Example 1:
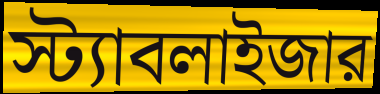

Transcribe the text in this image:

স্ট্যাবলাইজার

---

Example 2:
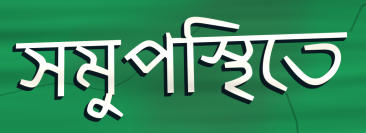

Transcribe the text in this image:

সমুপস্থিতে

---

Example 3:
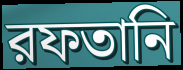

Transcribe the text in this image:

রফতানি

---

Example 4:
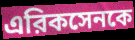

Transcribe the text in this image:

এরিকসেনকে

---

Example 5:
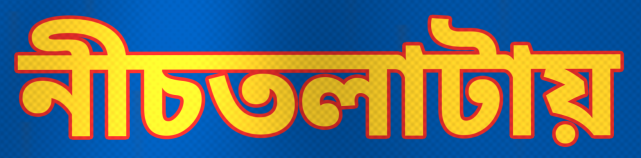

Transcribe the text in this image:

নীচতলাটায়